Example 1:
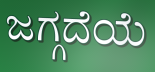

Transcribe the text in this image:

ಜಗ್ಗದೆಯೆ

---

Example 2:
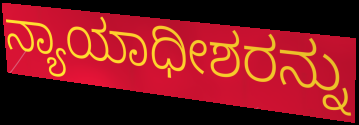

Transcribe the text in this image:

ನ್ಯಾಯಾಧೀಶರನ್ನು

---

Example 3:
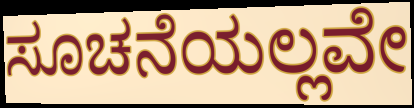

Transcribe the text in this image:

ಸೂಚನೆಯಲ್ಲವೇ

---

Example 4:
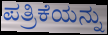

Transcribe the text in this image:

ಪತ್ರಿಕೆಯನ್ನು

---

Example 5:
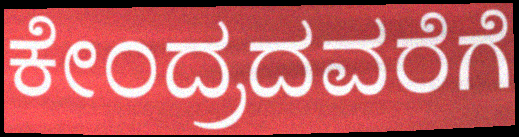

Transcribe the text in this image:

ಕೇಂದ್ರದವರೆಗೆ